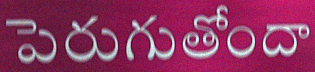
పెరుగుతోందా